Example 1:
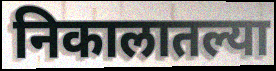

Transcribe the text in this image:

निकालातल्या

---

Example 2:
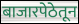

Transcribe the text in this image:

बाजारपेठेतून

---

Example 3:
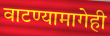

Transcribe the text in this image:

वाटण्यामागेही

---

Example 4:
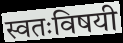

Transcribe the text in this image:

स्वतःविषयी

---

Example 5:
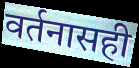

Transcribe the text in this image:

वर्तनासही